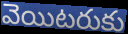
వెయిటరుకు